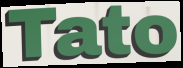
Tato